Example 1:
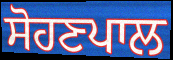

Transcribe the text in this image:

ਸੋਹਣਪਾਲ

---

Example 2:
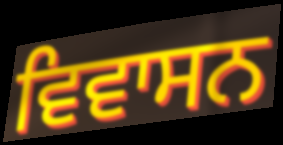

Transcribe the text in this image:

ਵਿਵਾਸਨ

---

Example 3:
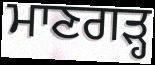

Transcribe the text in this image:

ਮਾਣਗੜ੍ਹ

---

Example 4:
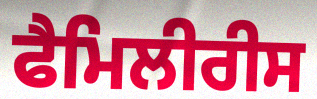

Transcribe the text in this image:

ਫੈਮਿਲੀਰੀਸ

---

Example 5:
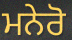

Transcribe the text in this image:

ਮਨੇਰੋ